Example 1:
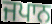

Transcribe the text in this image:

ਜਪਾਨ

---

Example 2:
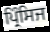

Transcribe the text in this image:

ਪ੍ਰਿੰਸਿਜ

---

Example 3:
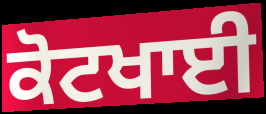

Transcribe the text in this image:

ਕੋਟਖਾਈ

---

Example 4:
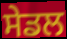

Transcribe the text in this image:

ਸੇਡਲ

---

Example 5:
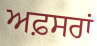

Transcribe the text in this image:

ਅਫ਼ਸਰਾਂ